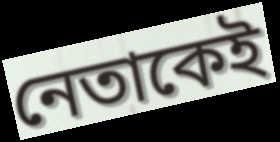
নেতাকেই